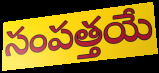
సంపత్తయే